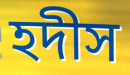
হদীস